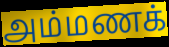
அம்மணக்